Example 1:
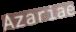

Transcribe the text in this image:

Azariae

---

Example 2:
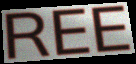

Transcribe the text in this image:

REE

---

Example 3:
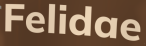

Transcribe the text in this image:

Felidae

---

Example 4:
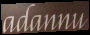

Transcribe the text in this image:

adannu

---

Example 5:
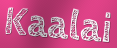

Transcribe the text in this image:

Kaalai